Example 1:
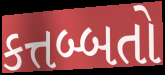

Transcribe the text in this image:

કત્તબ્બતો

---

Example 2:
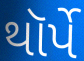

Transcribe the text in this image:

થૉર્પે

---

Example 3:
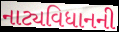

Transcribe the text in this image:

નાટ્યવિધાનની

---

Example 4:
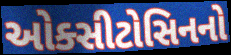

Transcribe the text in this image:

ઓક્સીટોસિનનો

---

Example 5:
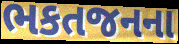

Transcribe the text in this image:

ભકતજનના